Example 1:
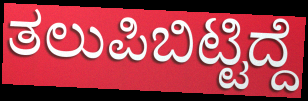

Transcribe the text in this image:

ತಲುಪಿಬಿಟ್ಟಿದ್ದೆ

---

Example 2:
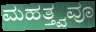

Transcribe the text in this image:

ಮಹತ್ತ್ವವೂ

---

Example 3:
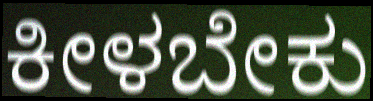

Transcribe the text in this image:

ಕೀಳಬೇಕು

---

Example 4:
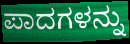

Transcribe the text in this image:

ಪಾದಗಳನ್ನು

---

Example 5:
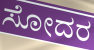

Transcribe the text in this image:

ಸೋದರ